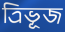
ত্ৰিভূজ